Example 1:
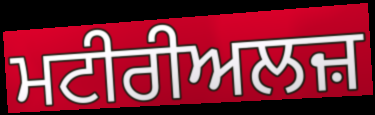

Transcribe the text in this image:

ਮਟੀਰੀਅਲਜ਼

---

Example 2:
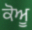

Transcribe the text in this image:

ਕੋਅੂ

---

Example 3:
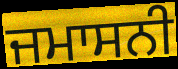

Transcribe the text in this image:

ਜਮਾਸਨੀ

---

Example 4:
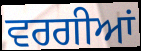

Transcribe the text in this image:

ਵਰਗੀਆਂ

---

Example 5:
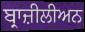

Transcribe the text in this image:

ਬ੍ਰਾਜ਼ੀਲੀਅਨ